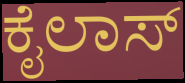
ಕೈಲಾಸ್